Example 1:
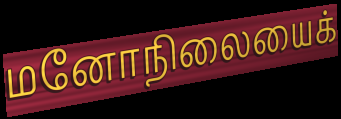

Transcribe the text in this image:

மனோநிலையைக்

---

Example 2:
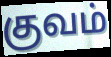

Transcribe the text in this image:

குவம்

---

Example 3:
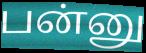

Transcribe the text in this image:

பன்னு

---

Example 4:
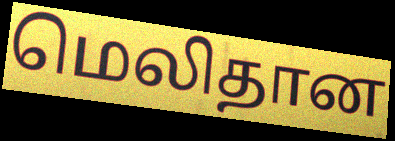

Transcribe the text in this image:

மெலிதான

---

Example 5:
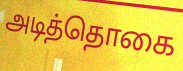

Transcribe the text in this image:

அடித்தொகை